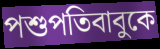
পশুপতিবাবুকে